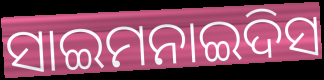
ସାଇମନାଇଦିସ